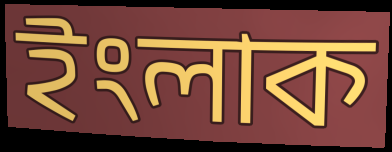
ইংলাক